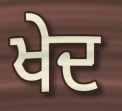
ਖੇਦ